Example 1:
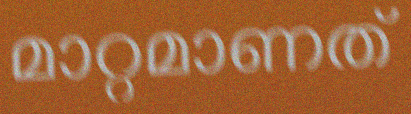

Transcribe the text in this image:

മാറ്റമാണത്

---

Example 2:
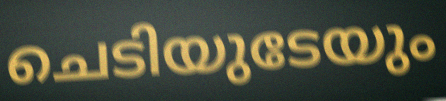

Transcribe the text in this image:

ചെടിയുടേയും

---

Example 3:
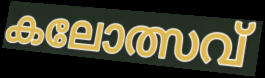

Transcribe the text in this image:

കലോത്സവ്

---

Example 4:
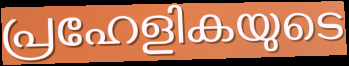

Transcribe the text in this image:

പ്രഹേളികയുടെ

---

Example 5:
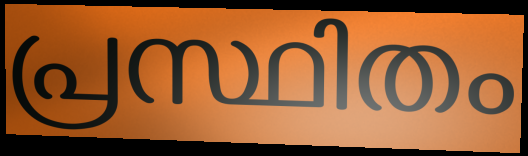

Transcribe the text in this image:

പ്രസ്ഥിതം